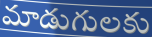
మాడుగులకు